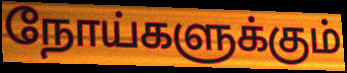
நோய்களுக்கும்